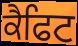
ਕੈਫਿਟ